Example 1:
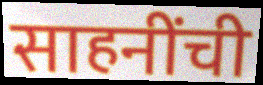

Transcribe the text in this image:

साहनींची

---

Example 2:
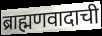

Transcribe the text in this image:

ब्राह्मणवादाची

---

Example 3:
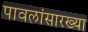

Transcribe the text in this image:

पावलांसारख्या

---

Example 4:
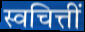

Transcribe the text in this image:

स्वचित्तीं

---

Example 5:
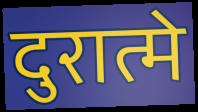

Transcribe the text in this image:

दुरात्मे